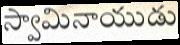
స్వామినాయుడు